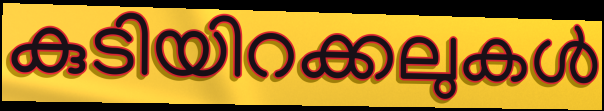
കുടിയിറക്കലുകൾ